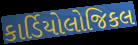
કાર્ડિયોલોજિકલ